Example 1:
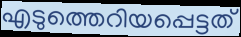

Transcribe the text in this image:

എടുത്തെറിയപ്പെട്ടത്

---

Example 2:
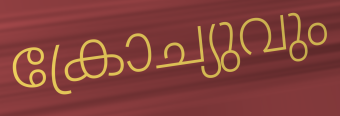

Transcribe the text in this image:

ക്രോച്യുവും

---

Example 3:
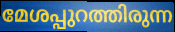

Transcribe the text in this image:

മേശപ്പുറത്തിരുന്ന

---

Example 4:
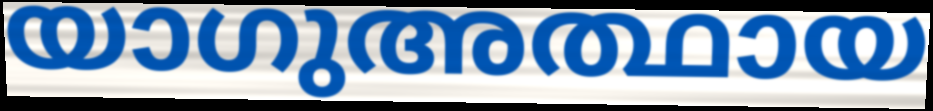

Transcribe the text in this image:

യാഗുഅത്ഥായ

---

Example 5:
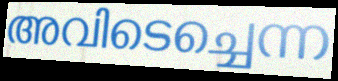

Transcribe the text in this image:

അവിടെച്ചെന്ന